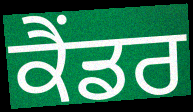
ਕੈਂਡਰ